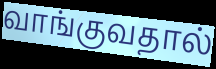
வாங்குவதால்